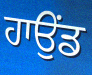
ਹਾਉਂਡ